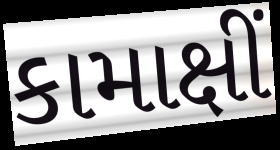
કામાક્ષીં